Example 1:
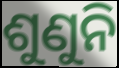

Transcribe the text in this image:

ଶୁଣୁନି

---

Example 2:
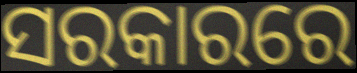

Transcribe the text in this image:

ସରକାରରେ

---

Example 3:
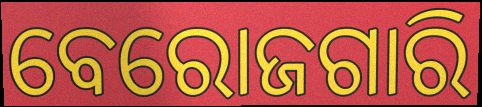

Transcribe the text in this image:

ବେରୋଜଗାରି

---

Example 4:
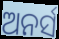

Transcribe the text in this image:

ଅନର୍ସ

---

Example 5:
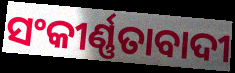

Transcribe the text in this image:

ସଂକୀର୍ଣ୍ଣତାବାଦୀ